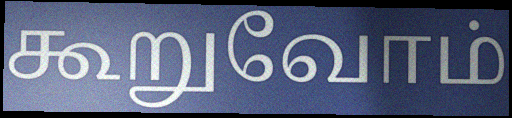
கூறுவோம்